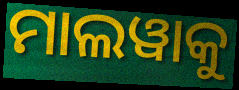
ମାଲୱାକୁ